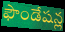
ఫౌండేషన్ల